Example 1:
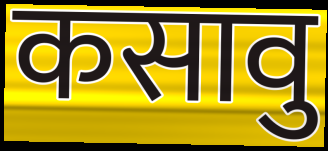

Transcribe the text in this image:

कसावु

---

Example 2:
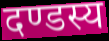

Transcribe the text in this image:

दण्डस्य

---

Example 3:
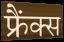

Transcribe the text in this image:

फ्रैंक्स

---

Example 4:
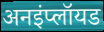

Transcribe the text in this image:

अनइंप्लॉयड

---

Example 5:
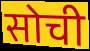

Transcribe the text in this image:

सोची